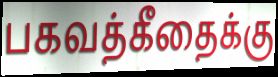
பகவத்கீதைக்கு